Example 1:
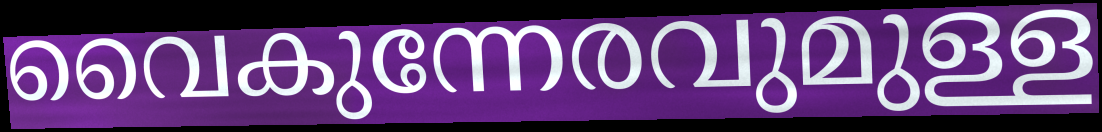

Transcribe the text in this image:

വൈകുന്നേരവുമുള്ള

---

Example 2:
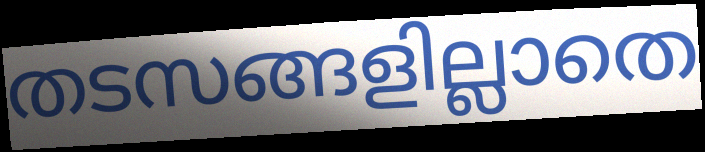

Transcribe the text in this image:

തടസങ്ങളില്ലാതെ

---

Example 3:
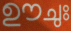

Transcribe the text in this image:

ഊചുഃ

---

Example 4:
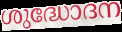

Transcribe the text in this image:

ശുദ്ധോദന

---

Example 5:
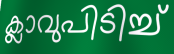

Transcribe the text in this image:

ക്ലാവുപിടിച്ച്